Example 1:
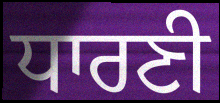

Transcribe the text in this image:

ਧਾਰਣੀ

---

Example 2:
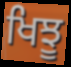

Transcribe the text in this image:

ਖਿਝੂ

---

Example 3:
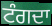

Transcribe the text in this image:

ਟੰਗਦਾ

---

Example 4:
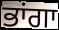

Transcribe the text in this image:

ਭਾਂਗਾ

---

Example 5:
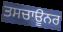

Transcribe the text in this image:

ਤਸਚਾਊਨਰ